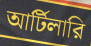
আর্টিলারি